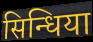
सिन्धिया